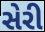
સેરી